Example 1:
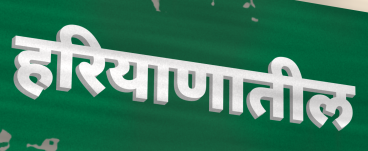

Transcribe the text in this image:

हरियाणातील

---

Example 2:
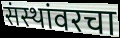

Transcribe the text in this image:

संस्थांवरचा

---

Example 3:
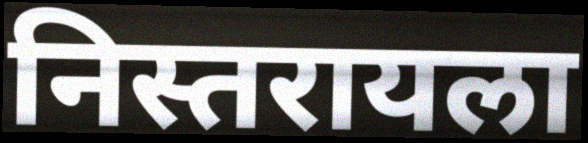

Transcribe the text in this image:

निस्तरायला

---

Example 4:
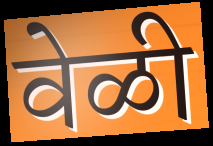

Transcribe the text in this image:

वेळी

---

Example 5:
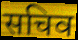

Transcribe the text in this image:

सचिव